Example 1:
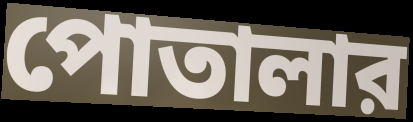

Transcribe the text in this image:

পোতালার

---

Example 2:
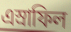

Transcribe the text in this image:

এস্রাফিল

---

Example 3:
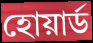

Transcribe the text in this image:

হোয়ার্ড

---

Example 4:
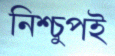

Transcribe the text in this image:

নিশ্চুপই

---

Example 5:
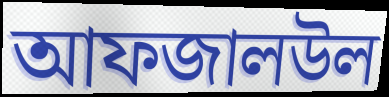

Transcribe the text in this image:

আফজালউল